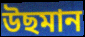
উছমান